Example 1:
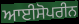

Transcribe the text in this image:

ਆਈਸੋਪਰੀਨ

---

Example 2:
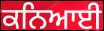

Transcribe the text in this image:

ਕਨਿਆਈ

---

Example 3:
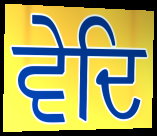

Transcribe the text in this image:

ਵੇਦਿ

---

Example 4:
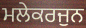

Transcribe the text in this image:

ਮਲੇਕਰਜੁਨ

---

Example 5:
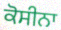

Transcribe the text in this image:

ਕੋਸੀਨਾ